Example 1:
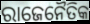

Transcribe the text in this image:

ରାଜେନୈତିକ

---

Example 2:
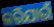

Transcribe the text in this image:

କରିଯାଉଁ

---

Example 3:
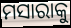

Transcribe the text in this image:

ମସାରାକୁ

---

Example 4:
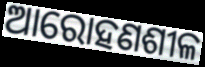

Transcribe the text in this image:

ଆରୋହଣଶୀଳ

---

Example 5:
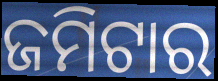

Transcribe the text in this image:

ଜମିଟାର